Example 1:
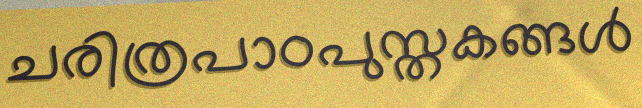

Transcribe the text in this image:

ചരിത്രപാഠപുസ്തകങ്ങൾ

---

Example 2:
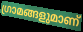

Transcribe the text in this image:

ഗ്രാമങ്ങളുമാണ്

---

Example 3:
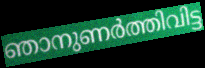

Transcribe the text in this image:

ഞാനുണർത്തിവിട്ട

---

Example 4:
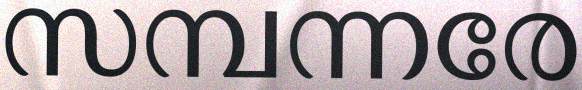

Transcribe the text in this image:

സമ്പന്നരേ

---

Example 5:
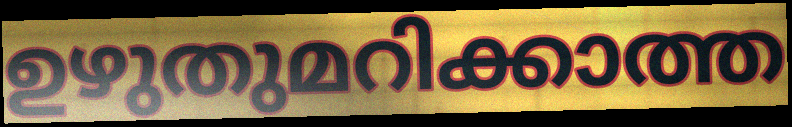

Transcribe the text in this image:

ഉഴുതുമറിക്കാത്ത